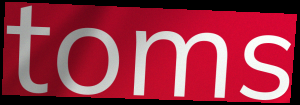
toms